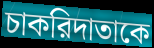
চাকরিদাতাকে